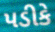
પડીકે